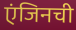
एंजिनची